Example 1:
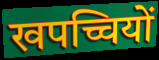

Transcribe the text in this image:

खपच्चियों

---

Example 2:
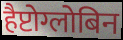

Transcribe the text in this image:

हैप्टोग्लोबिन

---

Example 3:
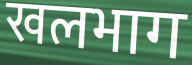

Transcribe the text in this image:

खलभाग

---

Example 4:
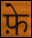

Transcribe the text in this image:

फ़े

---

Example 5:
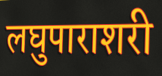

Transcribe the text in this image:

लघुपाराशरी